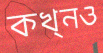
কখ্নও